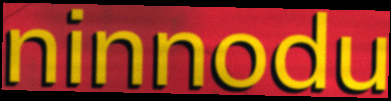
ninnodu